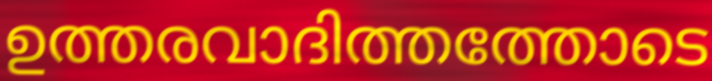
ഉത്തരവാദിത്തത്തോടെ